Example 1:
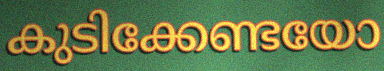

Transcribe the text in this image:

കുടിക്കേണ്ടയോ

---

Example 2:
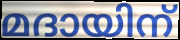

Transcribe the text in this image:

മദായിന്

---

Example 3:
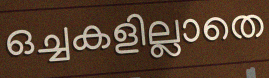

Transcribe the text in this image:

ഒച്ചകളില്ലാതെ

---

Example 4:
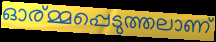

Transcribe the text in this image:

ഓര്മ്മപ്പെടുത്തലാണ്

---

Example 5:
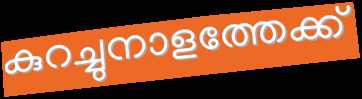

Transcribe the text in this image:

കുറച്ചുനാളത്തേക്ക്